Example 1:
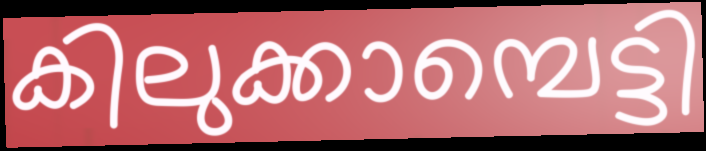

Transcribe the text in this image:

കിലുക്കാമ്പെട്ടി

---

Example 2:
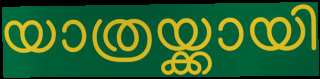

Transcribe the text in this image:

യാത്രയ്ക്കായി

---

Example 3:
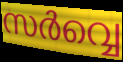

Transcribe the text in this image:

സർവ്വെ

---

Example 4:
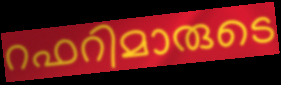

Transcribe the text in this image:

റഫറിമാരുടെ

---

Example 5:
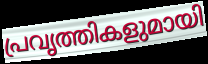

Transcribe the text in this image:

പ്രവൃത്തികളുമായി